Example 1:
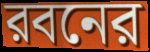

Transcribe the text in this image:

রবনের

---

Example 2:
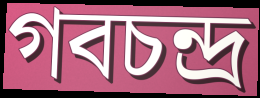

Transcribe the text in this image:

গবচন্দ্র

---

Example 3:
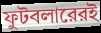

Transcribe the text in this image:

ফুটবলারেরই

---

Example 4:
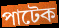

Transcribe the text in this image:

পাটেক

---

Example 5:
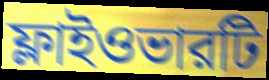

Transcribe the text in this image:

ফ্লাইওভারটি